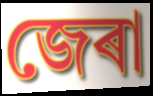
জেৰা